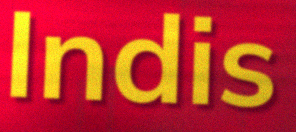
Indis